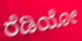
ರೆಡಿಯೋ